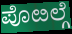
ಪೊೞಲ್ಗೆ